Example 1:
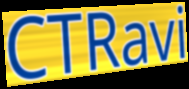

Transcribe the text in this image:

CTRavi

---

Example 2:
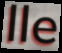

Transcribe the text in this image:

lle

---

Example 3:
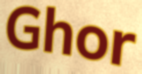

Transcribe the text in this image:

Ghor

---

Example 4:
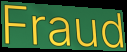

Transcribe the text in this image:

Fraud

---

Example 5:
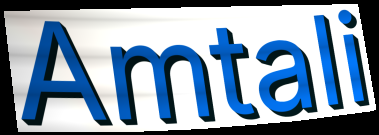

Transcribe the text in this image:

Amtali